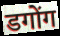
डगोंग